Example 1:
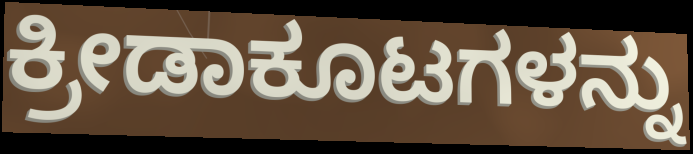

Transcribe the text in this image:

ಕ್ರೀಡಾಕೂಟಗಳನ್ನು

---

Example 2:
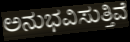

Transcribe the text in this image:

ಅನುಭವಿಸುತ್ತಿವೆ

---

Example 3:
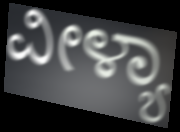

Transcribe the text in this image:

ವೀಳ್ಯಾ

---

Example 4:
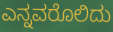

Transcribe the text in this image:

ಎನ್ನವರೊಲಿದು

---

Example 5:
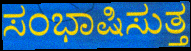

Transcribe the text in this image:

ಸಂಭಾಷಿಸುತ್ತ